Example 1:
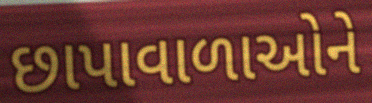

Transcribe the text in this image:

છાપાવાળાઓને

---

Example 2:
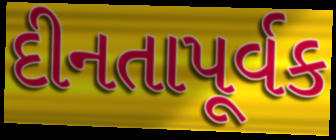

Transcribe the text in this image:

દીનતાપૂર્વક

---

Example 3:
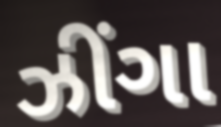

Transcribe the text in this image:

ઝીંગા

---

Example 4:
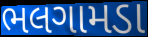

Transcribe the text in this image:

ભલગામડા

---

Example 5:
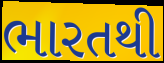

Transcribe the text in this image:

ભારતથી